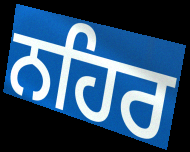
ਨਹਿਰ